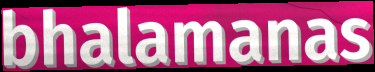
bhalamanas